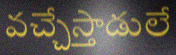
వచ్చేస్తాడులే